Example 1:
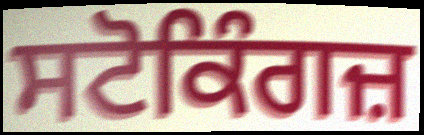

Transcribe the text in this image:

ਸਟੋਕਿੰਗਜ਼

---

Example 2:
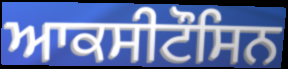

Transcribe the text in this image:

ਆਕਸੀਟੌਸਿਨ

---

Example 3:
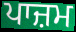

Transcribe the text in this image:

ਪਾਜ਼ਮ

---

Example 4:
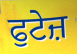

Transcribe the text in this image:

ਫੁਟੇਜ਼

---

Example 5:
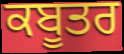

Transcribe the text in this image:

ਕਬੂਤਰ